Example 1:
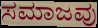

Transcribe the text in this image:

ಸಮಾಜವು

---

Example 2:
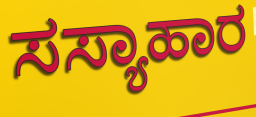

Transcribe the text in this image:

ಸಸ್ಯಾಹಾರ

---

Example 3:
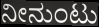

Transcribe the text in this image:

ನೀನುಂಟು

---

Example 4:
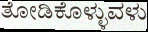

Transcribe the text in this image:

ತೋಡಿಕೊಳ್ಳುವಳು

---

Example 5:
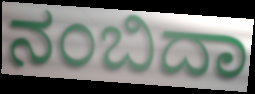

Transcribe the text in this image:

ನಂಬಿದಾ